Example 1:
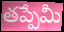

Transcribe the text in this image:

తప్పేమీ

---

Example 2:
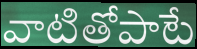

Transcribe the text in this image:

వాటితోపాటే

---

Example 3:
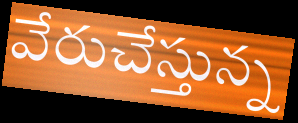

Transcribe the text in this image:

వేరుచేస్తున్న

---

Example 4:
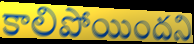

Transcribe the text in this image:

కాలిపోయిందని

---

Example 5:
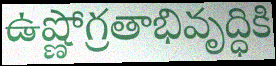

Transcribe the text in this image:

ఉష్ణోగ్రతాభివృద్ధికి